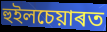
হুইলচেয়াৰত